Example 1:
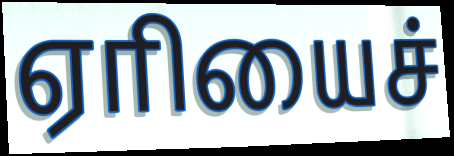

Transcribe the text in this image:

ஏரியைச்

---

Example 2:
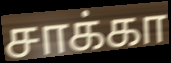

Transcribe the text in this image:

சாக்கா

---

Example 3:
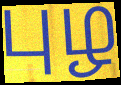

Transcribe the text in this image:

புழ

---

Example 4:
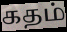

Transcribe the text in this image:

கதம்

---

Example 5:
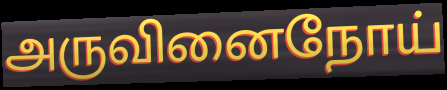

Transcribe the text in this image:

அருவினைநோய்